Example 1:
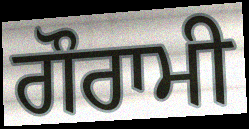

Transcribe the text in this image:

ਗੌਰਾਮੀ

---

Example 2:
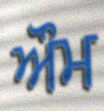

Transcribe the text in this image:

ਔਮ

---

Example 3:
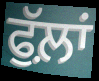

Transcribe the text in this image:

ਫੁੱਲ਼ਾਂ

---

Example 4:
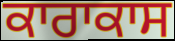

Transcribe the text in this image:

ਕਾਰਾਕਾਸ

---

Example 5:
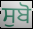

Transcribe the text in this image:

ਸੁਬੋ